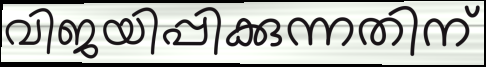
വിജയിപ്പിക്കുന്നതിന്